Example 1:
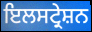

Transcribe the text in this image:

ਇਲਸਟ੍ਰੇਸ਼ਨ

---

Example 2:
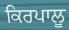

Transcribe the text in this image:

ਕਿਰਪਾਲੂ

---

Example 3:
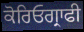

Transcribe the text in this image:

ਕੋਰਿਓਗ੍ਰਾਫੀ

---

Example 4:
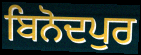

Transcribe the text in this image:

ਬਿਨੋਦਪੁਰ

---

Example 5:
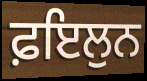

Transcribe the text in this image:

ਫ਼ਇਲੁਨ